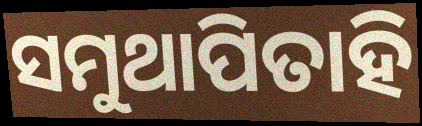
ସମୁଥାପିତାହି